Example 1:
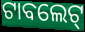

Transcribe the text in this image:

ଟାବଲେଟ୍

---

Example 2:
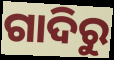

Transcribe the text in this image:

ଗାଦିରୁ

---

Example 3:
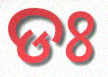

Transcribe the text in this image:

ଡଃ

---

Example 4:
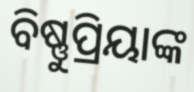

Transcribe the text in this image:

ବିଷ୍ଣୁପ୍ରିୟାଙ୍କ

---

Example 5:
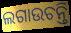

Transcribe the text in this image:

ଲଗାଉଚନ୍ତି